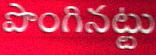
పొంగినట్టు